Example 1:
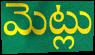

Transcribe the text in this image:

మెట్లు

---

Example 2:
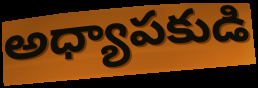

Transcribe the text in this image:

అధ్యాపకుడి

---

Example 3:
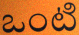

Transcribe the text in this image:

ఒంటి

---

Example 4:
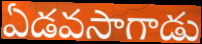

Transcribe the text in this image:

ఏడవసాగాడు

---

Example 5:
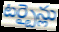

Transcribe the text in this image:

టర్బైన్లు